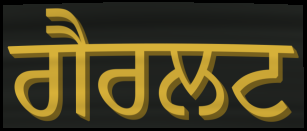
ਗੈਰਲਟ